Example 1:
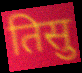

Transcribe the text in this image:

तिसु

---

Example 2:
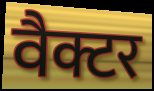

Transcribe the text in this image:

वैक्टर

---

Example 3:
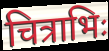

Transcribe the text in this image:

चित्राभिः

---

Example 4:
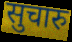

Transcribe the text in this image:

सुचारु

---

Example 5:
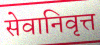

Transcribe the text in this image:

सेवानिवृत्त